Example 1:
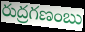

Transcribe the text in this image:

రుద్రగణంబు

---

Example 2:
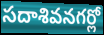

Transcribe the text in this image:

సదాశివనగర్లో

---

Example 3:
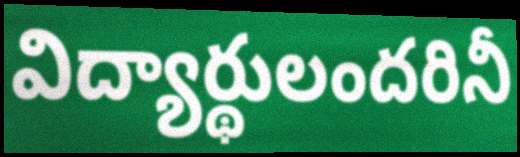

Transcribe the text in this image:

విద్యార్థులందరినీ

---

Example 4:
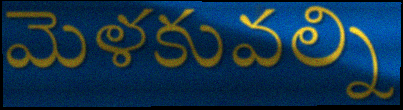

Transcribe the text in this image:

మెళకువల్ని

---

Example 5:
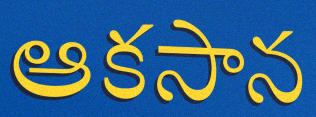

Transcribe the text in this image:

ఆకసాన